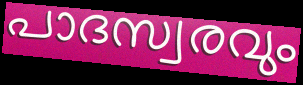
പാദസ്വരവും